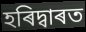
হৰিদ্বাৰত